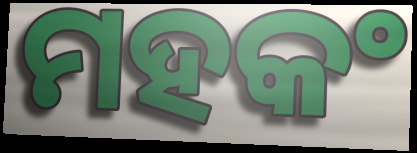
ମହକଂ